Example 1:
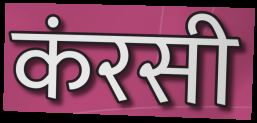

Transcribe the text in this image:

कंरसी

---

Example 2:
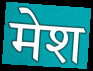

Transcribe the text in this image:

मेश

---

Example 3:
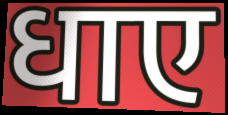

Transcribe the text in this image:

धाए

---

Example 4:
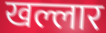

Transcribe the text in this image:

खल्लार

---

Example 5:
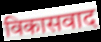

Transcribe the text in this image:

विकासवाद